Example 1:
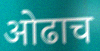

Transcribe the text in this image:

ओढाच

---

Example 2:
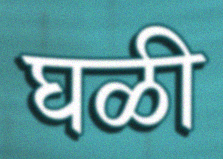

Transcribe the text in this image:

घळी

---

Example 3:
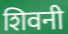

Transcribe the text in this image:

शिवनी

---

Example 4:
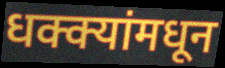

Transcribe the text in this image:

धक्क्यांमधून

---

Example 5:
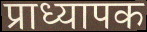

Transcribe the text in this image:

प्राध्यापक